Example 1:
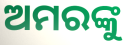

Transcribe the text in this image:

ଅମରଙ୍କୁ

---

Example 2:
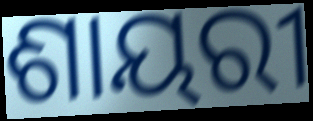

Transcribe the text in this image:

ଶାୟରୀ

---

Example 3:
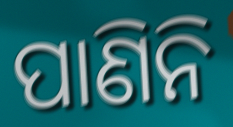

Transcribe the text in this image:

ପାଣିନି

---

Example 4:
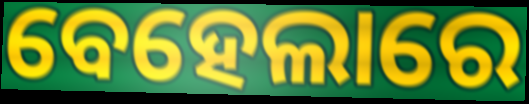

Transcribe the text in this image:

ବେହେଲାରେ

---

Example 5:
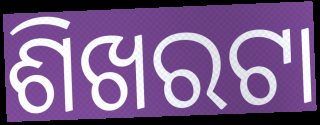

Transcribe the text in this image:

ଶିଖରଟା